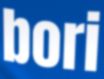
bori